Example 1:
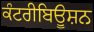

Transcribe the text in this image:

ਕੰਟਰੀਬਿਊਸ਼ਨ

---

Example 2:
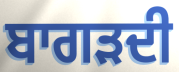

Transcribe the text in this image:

ਬਾਗੜਦੀ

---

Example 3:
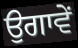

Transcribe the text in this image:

ਉਗਾਵੇਂ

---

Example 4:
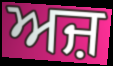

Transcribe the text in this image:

ਅਜ਼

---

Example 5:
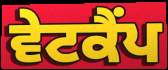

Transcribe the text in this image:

ਵੇਟਕੈਂਪ